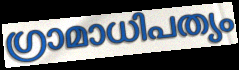
ഗ്രാമാധിപത്യം